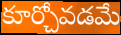
కూర్చోవడమే